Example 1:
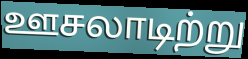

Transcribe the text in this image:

ஊசலாடிற்று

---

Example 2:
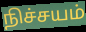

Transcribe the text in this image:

நிச்சயம்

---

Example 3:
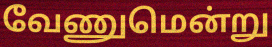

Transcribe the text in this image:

வேணுமென்று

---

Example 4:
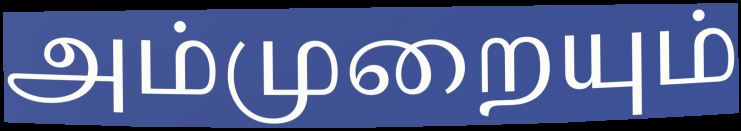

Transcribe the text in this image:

அம்முறையும்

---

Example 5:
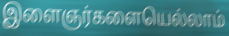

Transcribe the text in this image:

இளைஞர்களையெல்லாம்